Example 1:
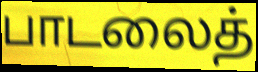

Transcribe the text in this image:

பாடலைத்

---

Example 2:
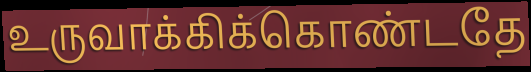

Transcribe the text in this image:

உருவாக்கிக்கொண்டதே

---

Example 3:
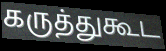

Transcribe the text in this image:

கருத்துகூட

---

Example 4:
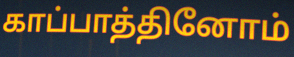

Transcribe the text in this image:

காப்பாத்தினோம்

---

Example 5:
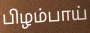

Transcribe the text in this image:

பிழம்பாய்